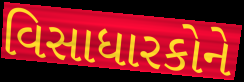
વિસાધારકોને